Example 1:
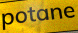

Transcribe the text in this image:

potane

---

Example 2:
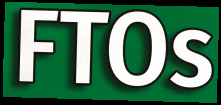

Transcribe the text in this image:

FTOs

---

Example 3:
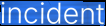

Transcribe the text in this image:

incident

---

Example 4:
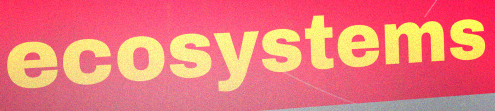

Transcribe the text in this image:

ecosystems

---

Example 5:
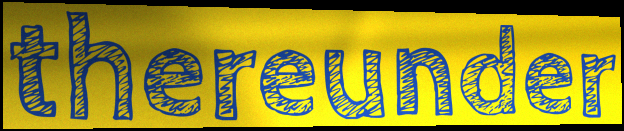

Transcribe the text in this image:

thereunder